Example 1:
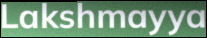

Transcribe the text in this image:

Lakshmayya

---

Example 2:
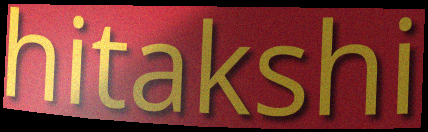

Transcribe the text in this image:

hitakshi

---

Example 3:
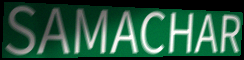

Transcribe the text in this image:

SAMACHAR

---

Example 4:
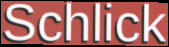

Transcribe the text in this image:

Schlick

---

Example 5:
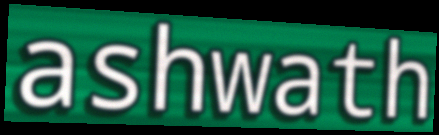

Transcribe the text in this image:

ashwath